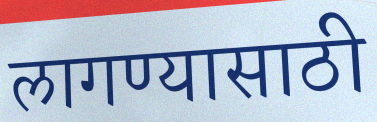
लागण्यासाठी